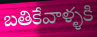
బతికేవాళ్ళకి